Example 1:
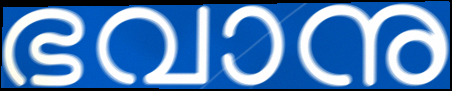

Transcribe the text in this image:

ഭവാനു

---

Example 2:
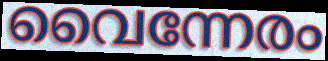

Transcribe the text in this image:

വൈന്നേരം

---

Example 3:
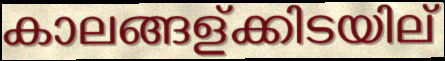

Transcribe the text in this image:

കാലങ്ങള്ക്കിടയില്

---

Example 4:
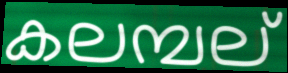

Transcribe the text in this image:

കലമ്പല്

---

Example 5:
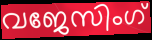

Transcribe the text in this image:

വജേസിംഗ്